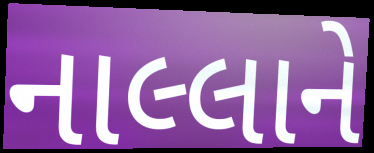
નાલ્લાને